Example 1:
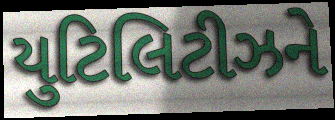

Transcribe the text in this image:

યુટિલિટીઝને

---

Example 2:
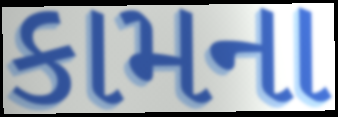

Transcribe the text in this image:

કામના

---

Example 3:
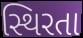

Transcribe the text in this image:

સ્થિરતા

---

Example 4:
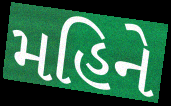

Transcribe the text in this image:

મહિને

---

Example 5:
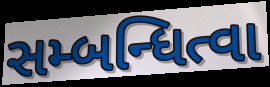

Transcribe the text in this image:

સમ્બન્ધિત્વા